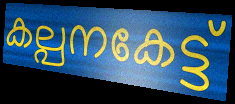
കല്പനകേട്ട്